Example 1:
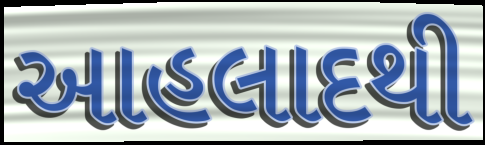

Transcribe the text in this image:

આહલાદથી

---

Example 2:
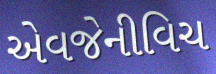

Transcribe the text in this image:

એવજેનીવિચ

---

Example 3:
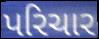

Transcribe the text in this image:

પરિચાર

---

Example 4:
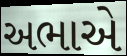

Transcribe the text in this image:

અભાએ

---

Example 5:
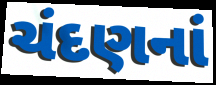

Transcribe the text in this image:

ચંદણનાં